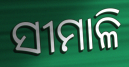
ସୀମାଳି